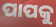
ପାପକୁ